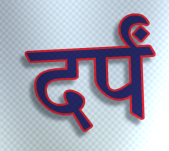
दर्पं